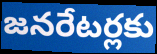
జనరేటర్లకు